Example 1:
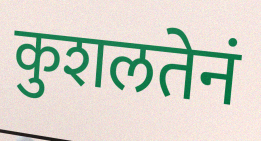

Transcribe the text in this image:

कुशलतेनं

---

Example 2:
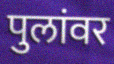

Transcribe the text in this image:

पुलांवर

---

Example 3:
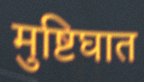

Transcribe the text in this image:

मुष्टिघात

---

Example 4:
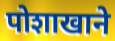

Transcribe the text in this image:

पोशाखाने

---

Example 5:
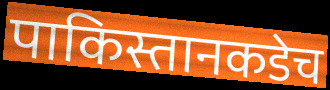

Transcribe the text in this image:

पाकिस्तानकडेच